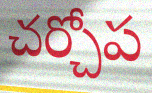
చర్చోప